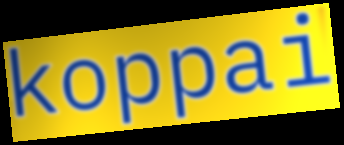
koppai